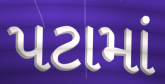
પટામાં